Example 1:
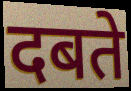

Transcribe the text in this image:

दबते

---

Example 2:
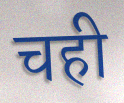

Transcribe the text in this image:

चही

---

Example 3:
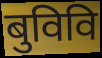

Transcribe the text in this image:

बुविवि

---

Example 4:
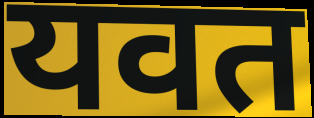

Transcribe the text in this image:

यवत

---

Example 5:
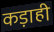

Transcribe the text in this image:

कड़ाही